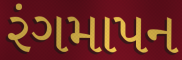
રંગમાપન